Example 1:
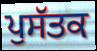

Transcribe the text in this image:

ਪੁਸੱਤਕ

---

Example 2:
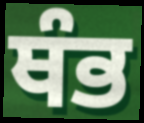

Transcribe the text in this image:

ਥੰਭ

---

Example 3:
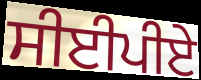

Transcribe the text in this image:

ਸੀਈਪੀਏ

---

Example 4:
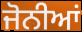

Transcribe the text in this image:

ਜੋਨੀਆਂ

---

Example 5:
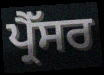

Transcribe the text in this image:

ਪ੍ਰੈੱਸਰ